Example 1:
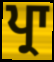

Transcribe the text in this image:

ਪ੍ਰਾ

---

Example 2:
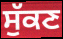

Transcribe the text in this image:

ਸੁੱਕਣ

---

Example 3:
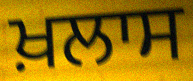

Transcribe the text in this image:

ਖ਼ਲਾਸ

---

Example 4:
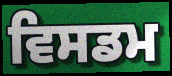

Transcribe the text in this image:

ਵਿਸਡਮ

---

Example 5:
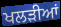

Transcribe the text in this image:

ਖਲੜੀਆਂ